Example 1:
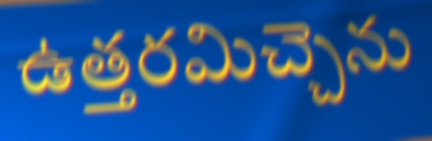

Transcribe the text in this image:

ఉత్తరమిచ్చెను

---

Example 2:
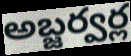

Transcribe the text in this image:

అబ్జర్వర్ల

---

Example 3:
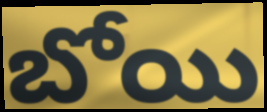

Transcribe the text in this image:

బోయి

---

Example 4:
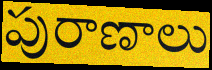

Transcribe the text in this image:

పురాణాలు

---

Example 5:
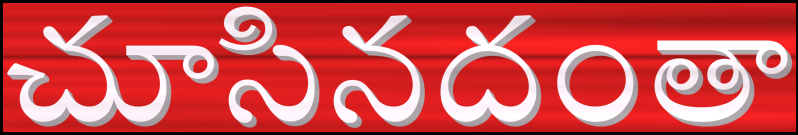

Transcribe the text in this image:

చూసినదంతా